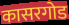
कासरगोड